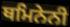
ਥਮਿਨੇਨੀ